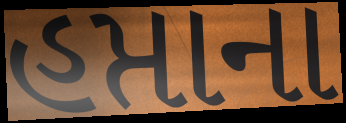
હપ્તાના